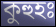
কুহুহঃ